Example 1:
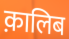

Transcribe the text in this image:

क़ालिब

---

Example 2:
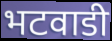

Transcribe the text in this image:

भटवाडी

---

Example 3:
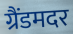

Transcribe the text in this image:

ग्रैंडमदर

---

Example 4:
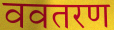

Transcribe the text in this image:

ववतरण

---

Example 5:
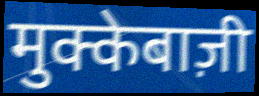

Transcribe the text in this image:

मुक्केबाज़ी